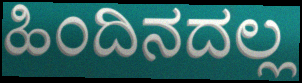
ಹಿಂದಿನದಲ್ಲ